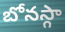
బోనస్గా